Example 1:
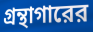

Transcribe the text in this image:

গ্রন্থাগারের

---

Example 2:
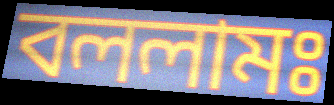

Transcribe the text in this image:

বললামঃ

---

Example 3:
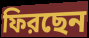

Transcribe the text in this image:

ফিরছেন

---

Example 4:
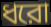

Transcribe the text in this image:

ধরো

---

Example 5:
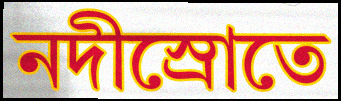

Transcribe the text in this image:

নদীস্রোতে